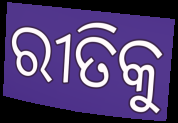
ରୀତିକୁ